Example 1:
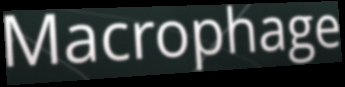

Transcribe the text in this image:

Macrophage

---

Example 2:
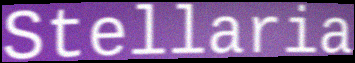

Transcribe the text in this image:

Stellaria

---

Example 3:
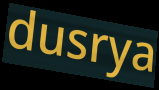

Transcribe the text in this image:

dusrya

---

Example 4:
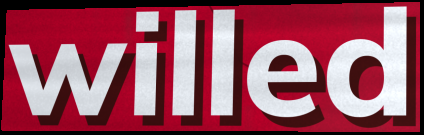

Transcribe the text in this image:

willed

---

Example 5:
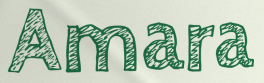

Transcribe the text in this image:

Amara